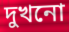
দুখনো